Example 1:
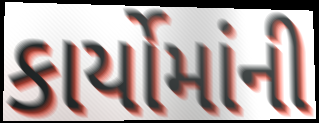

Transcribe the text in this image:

કાર્યોમાંની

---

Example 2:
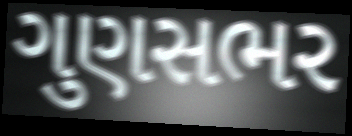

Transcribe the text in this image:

ગુણસભર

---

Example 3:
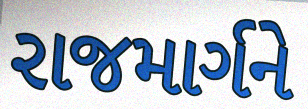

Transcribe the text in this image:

રાજમાર્ગને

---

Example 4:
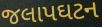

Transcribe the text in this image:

જલાપઘટન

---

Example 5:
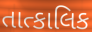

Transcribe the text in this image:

તાત્કાલિક